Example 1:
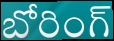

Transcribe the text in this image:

బోరింగ్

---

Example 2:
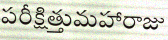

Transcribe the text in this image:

పరీక్షిత్తుమహారాజు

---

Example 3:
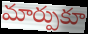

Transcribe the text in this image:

మార్పుకూ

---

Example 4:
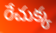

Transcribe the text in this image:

రేచుక్క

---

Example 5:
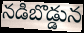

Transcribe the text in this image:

నడిబొడ్డున